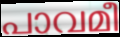
പാവമീ